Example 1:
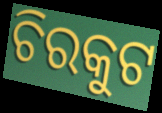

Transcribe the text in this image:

ଚିରକୁଟ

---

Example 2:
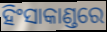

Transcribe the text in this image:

ହିଂସାକାଣ୍ଡରେ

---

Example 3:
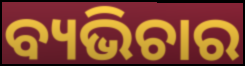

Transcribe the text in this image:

ବ୍ୟଭିଚାର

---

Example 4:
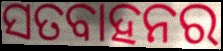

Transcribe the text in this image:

ସତବାହନର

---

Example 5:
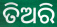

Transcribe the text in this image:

ତିଅରି